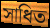
সাধিত